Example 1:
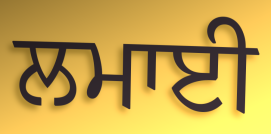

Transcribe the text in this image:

ਲਮਾਈ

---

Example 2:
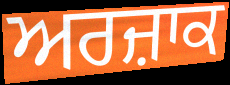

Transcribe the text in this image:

ਅਰਜ਼ਾਕ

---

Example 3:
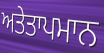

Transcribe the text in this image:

ਅਤੇਤਾਪਮਾਨ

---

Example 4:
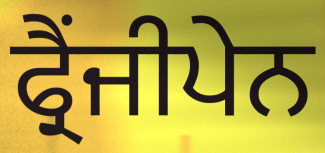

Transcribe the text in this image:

ਫ੍ਰੈਂਜੀਪੇਨ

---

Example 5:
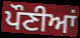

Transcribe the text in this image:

ਪੌਣੀਆਂ